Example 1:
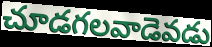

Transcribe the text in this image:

చూడగలవాడెవడు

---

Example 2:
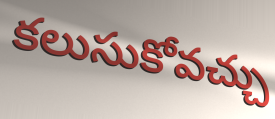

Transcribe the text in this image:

కలుసుకోవచ్చు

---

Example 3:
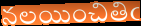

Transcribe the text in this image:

నలయించితిఁ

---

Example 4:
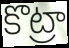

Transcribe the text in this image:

కొట్రా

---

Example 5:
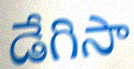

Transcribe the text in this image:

డేగిసా